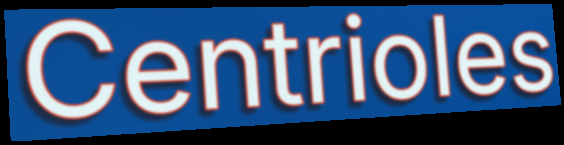
Centrioles